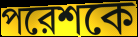
পরেশকে